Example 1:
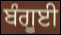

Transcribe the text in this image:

ਬੰਗੂਈ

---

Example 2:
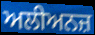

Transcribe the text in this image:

ਅਲੀਅਨਜ਼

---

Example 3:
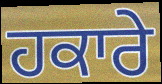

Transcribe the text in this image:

ਹਕਾਰੇ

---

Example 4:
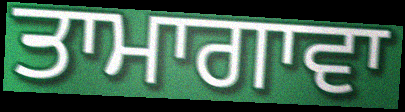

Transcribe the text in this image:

ਤਾਮਾਗਾਵਾ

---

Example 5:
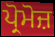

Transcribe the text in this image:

ਪ੍ਰੋਮੋਜ਼